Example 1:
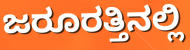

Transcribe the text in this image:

ಜರೂರತ್ತಿನಲ್ಲಿ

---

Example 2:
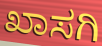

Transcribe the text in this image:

ಖಾಸಗಿ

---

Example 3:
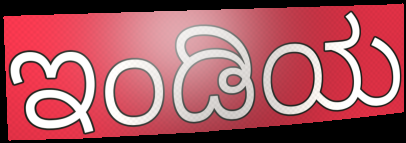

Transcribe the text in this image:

ಇಂಡಿಯ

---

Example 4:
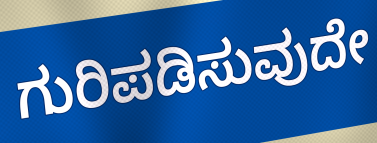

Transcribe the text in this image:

ಗುರಿಪಡಿಸುವುದೇ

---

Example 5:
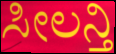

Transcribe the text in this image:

ಸೀಲನ್ತಿ